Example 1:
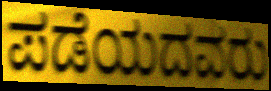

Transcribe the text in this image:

ಪಡೆಯದವರು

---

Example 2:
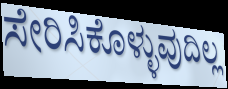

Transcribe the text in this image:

ಸೇರಿಸಿಕೊಳ್ಳುವುದಿಲ್ಲ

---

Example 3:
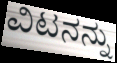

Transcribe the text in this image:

ವಿಟನನ್ನು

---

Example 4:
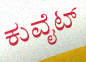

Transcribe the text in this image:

ಕುವೈಟ್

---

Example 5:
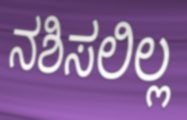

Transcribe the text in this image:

ನಶಿಸಲಿಲ್ಲ